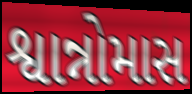
શ્વાન્નોમાસ